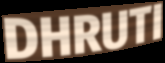
DHRUTI